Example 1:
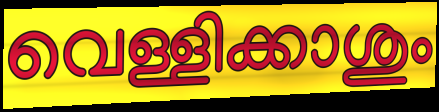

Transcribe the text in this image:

വെള്ളിക്കാശും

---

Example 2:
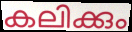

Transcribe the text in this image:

കലിക്കും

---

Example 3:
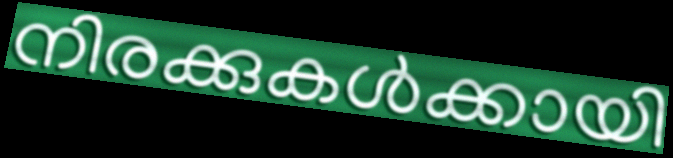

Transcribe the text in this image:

നിരക്കുകൾക്കായി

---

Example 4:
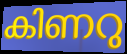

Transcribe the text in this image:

കിണറു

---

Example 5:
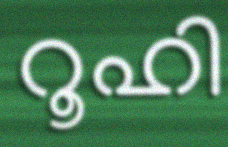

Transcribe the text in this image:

റൂഹി